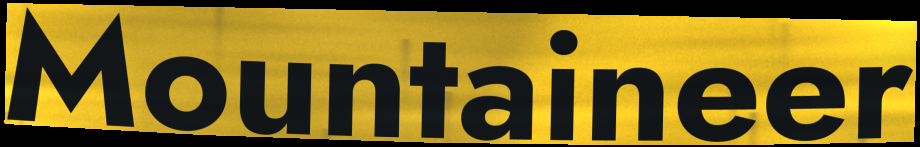
Mountaineer